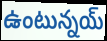
ఉంటున్నయ్